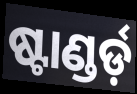
ଷ୍ଟାଣ୍ଡର୍ଡ଼